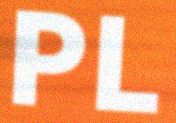
PL